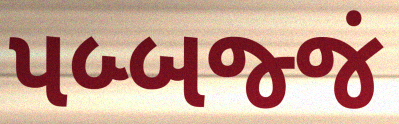
પબ્બજ્જં